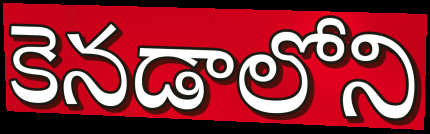
కెనడాలోని